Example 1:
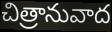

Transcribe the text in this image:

చిత్రానువాద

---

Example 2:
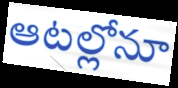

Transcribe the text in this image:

ఆటల్లోనూ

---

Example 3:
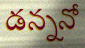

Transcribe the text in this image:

డన్ననో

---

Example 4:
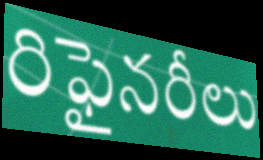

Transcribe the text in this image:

రిఫైనరీలు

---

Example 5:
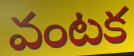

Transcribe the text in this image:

వంటక